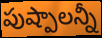
పుష్పాలన్నీ